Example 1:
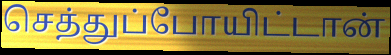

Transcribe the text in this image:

செத்துப்போயிட்டான்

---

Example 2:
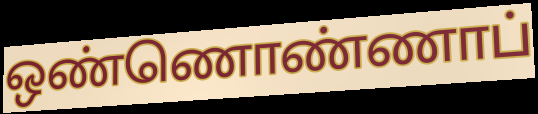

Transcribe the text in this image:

ஒண்ணொண்ணாப்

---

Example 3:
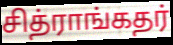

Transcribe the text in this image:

சித்ராங்கதர்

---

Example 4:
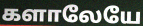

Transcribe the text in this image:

களாலேயே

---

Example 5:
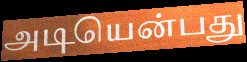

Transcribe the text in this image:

அடியென்பது